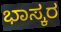
ಭಾಸ್ಕರ